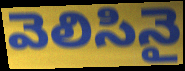
వెలిసినై